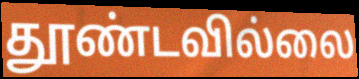
தூண்டவில்லை